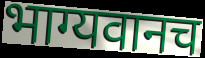
भाग्यवानच